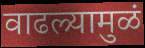
वाढल्यामुळं